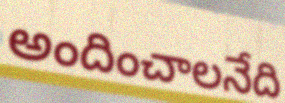
అందించాలనేది